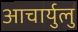
आचार्युलु